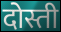
दोस्ती